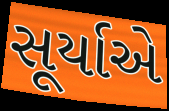
સૂર્યાએ